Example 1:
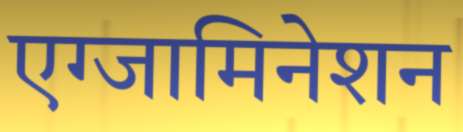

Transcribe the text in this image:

एग्‍जामिनेशन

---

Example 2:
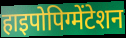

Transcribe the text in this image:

हाइपोपिग्मेंटेशन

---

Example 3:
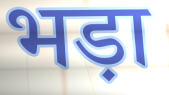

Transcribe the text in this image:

भड़ा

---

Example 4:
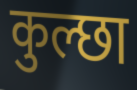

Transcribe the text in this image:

कुल्छा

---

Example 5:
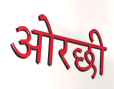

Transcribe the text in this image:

ओरछी